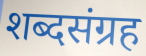
शब्दसंग्रह